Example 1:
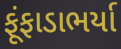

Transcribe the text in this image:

ફૂંફાડાભર્યા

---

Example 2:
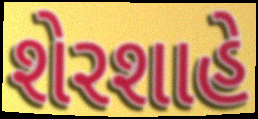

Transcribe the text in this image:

શેરશાહે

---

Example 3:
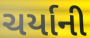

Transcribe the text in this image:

ચર્યાની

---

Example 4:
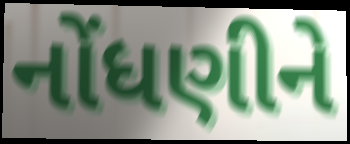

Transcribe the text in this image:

નોંધણીને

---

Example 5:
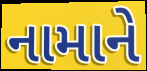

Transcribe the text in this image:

નામાને